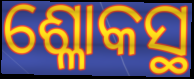
ଶ୍ଳୋକସ୍ଥ